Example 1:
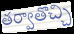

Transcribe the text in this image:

తర్వాతొచ్చి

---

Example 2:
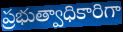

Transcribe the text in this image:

ప్రభుత్వాధికారిగా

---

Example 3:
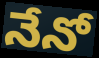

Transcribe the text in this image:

నేనో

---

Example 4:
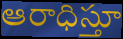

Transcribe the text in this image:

ఆరాధిస్తూ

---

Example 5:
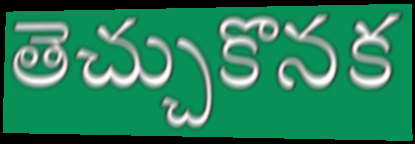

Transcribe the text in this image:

తెచ్చుకొనక